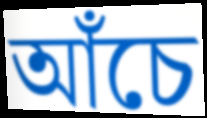
আঁচে